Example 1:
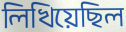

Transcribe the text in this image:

লিখিয়েছিল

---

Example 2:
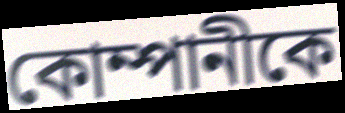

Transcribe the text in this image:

কোম্পানীকে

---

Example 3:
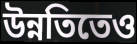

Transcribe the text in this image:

উন্নতিতেও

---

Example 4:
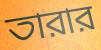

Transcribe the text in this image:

তারার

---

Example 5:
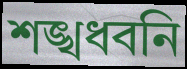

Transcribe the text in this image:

শঙ্খধবনি